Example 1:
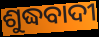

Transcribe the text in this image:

ଶୁଦ୍ଧବାଦୀ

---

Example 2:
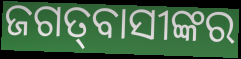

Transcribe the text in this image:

ଜଗତ୍‍ବାସୀଙ୍କର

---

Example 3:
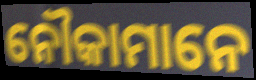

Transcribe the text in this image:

ନୌକାମାନେ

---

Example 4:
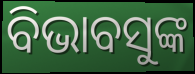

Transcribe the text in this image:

ବିଭାବସୁଙ୍କ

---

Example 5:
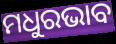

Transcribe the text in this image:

ମଧୁରଭାବ